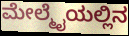
ಮೇಲ್ಮೈಯಲ್ಲಿನ